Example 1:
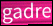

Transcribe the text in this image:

gadre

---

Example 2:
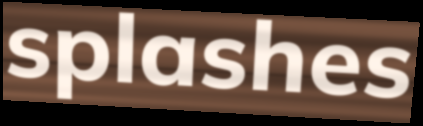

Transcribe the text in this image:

splashes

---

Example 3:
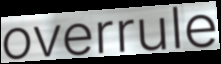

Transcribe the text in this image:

overrule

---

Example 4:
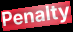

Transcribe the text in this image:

Penalty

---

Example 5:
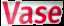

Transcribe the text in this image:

Vase